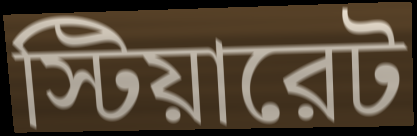
স্টিয়ারেট